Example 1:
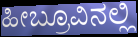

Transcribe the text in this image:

ಹೀಬ್ರೂವಿನಲ್ಲಿ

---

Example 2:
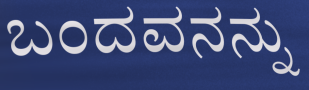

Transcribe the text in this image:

ಬಂದವನನ್ನು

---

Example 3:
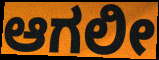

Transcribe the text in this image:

ಆಗಲೀ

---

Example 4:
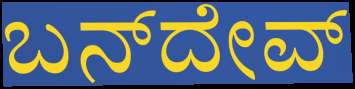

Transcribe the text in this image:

ಬನ್‌ದೇವ್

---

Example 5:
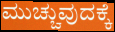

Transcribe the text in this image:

ಮುಚ್ಚುವುದಕ್ಕೆ